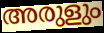
അരുളും